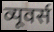
व्यूवर्स